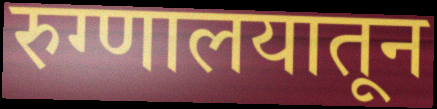
रुग्णालयातून